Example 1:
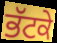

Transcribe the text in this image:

ਭੱਟਕੇ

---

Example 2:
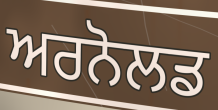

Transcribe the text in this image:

ਅਰਨੋਲਡ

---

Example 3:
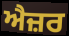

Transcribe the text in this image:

ਐਜ਼ਰ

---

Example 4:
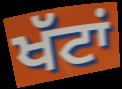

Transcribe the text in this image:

ਖੱਟਾਂ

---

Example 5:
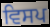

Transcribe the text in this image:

ਵਿਸਪ